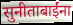
सुनीताबाईंना